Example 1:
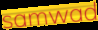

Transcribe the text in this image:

samwad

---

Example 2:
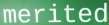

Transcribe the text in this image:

merited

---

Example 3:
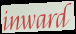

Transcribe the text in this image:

inward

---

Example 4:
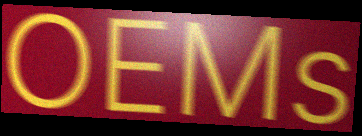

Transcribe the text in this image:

OEMs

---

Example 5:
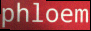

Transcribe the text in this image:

phloem